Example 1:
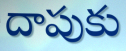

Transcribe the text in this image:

దాపుకు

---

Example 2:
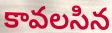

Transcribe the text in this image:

కావలసిన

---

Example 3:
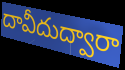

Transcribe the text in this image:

దావీదుద్వారా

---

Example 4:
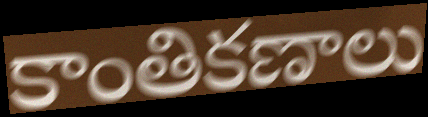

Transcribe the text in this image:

కాంతికణాలు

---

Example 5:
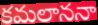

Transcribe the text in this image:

కమలాననా